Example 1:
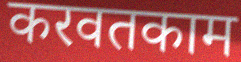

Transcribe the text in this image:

करवतकाम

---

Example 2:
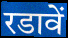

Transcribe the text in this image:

रडावें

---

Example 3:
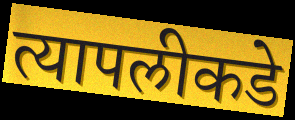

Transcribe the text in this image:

त्यापलीकडे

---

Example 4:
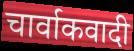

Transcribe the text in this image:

चार्वाकवादी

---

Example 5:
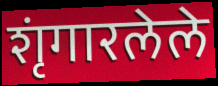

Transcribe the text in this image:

शृंगारलेले